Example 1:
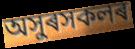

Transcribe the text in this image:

অসুৰসকলৰ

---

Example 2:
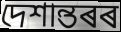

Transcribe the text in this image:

দেশান্তৰৰ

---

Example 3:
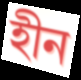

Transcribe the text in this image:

হীন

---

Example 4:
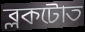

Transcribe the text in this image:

ব্লকটোত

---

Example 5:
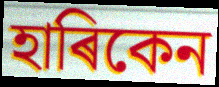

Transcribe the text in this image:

হাৰিকেন